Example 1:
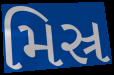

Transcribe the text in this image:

મિસ્ર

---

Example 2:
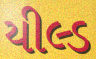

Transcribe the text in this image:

યીલ્ડ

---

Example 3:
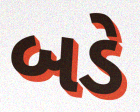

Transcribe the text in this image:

બડે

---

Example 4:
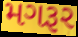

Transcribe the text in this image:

મગરૂર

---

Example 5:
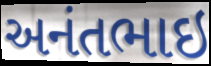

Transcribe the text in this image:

અનંતભાઇ